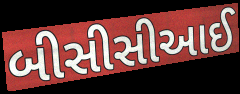
બીસીસીઆઈ